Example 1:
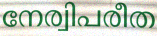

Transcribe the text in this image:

നേര്വിപരീത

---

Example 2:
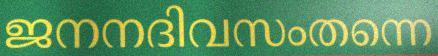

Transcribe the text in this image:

ജനനദിവസംതന്നെ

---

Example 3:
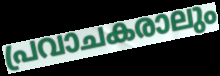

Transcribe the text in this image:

പ്രവാചകരാലും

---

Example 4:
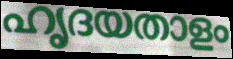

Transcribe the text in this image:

ഹൃദയതാളം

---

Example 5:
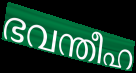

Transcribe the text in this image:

ഭവന്തീഹ